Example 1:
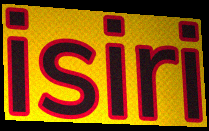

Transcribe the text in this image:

isiri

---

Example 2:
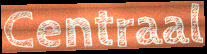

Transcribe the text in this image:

Centraal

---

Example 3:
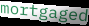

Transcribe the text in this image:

mortgaged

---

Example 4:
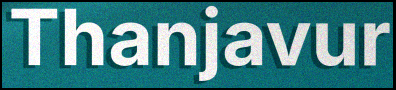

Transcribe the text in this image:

Thanjavur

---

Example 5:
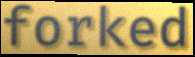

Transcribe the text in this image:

forked